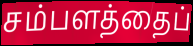
சம்பளத்தைப்